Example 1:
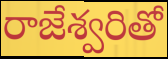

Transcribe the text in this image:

రాజేశ్వరితో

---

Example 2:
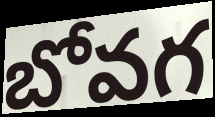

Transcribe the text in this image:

బోవగ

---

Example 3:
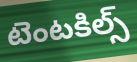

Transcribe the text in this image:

టెంటకిల్స్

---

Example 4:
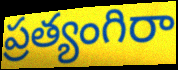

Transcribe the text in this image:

ప్రత్యంగిరా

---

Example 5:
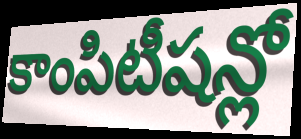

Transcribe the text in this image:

కాంపిటీషన్లో